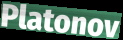
Platonov